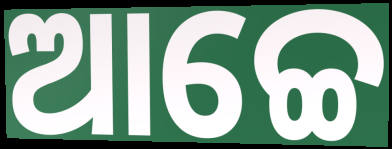
ଆଚ୍ଚେ